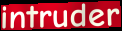
intruder